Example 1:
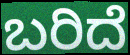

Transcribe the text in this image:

ಬರಿದೆ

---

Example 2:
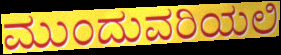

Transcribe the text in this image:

ಮುಂದುವರಿಯಲಿ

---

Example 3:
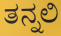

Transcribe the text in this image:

ತನ್ನಲಿ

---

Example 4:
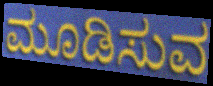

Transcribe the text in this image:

ಮೂಡಿಸುವ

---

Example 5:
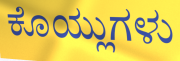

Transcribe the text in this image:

ಕೊಯ್ಲುಗಳು